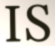
IS